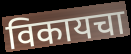
विकायचा